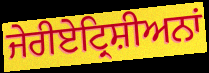
ਜੇਰੀਏਟ੍ਰਿਸ਼ੀਅਨਾਂ